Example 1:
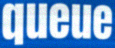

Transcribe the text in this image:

queue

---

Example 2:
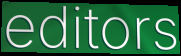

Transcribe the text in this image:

editors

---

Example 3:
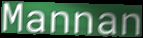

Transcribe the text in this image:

Mannan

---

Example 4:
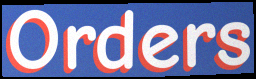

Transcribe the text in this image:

Orders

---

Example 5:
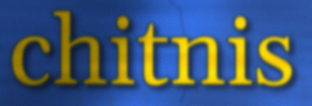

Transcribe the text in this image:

chitnis